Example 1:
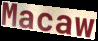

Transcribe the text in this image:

Macaw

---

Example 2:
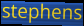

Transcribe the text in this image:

stephens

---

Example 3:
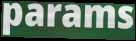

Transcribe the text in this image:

params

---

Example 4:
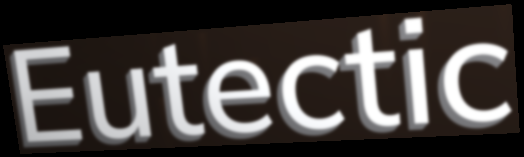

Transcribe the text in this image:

Eutectic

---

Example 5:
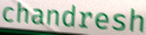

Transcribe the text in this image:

chandresh